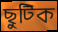
ছুট্কি